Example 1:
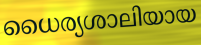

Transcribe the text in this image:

ധൈര്യശാലിയായ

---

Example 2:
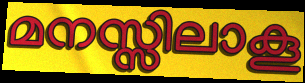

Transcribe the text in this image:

മനസ്സിലാകൂ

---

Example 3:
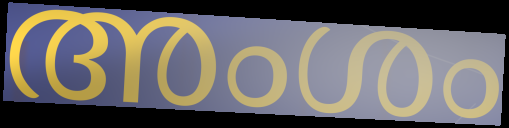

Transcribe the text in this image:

അംശം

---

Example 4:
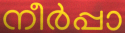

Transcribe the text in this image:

നീർപ്പാ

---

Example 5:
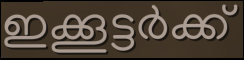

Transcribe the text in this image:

ഇക്കൂട്ടർക്ക്